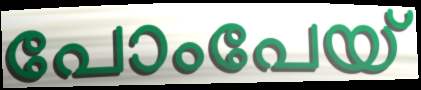
പോംപേയ്